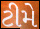
ટીમે